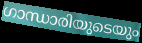
ഗാന്ധാരിയുടെയും